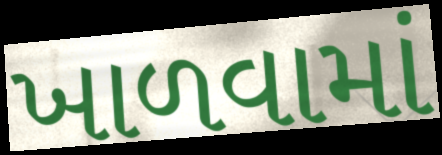
ખાળવામાં